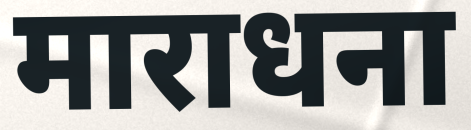
माराधना